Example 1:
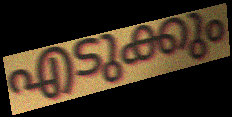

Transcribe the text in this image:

എടുക്കും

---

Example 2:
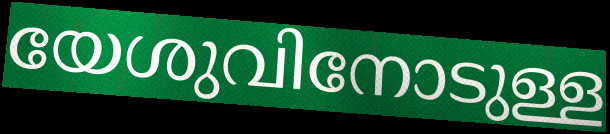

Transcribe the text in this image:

യേശുവിനോടുള്ള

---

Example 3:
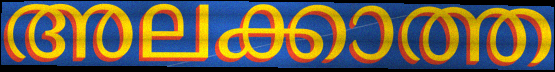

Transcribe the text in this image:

അലക്കാത്ത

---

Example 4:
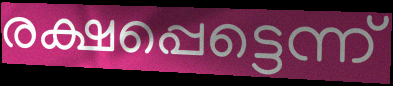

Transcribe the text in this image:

രക്ഷപ്പെട്ടെന്ന്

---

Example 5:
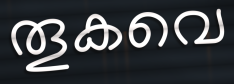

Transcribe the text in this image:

തൂകവെ